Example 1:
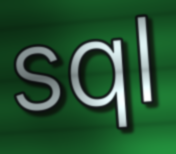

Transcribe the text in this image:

sql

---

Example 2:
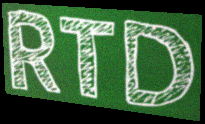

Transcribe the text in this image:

RTD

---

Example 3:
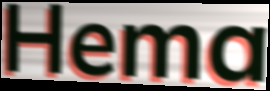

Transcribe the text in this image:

Hema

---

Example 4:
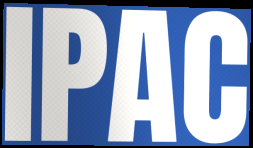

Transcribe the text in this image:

IPAC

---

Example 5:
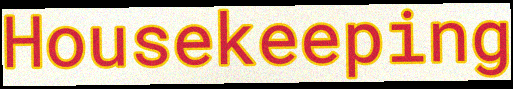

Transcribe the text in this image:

Housekeeping